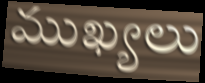
ముఖ్యలు